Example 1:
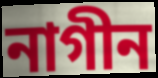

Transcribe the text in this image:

নাগীন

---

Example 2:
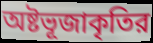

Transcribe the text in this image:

অষ্টভূজাকৃতির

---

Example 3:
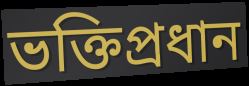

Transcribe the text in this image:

ভক্তিপ্রধান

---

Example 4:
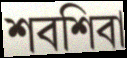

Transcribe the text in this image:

শবশিবা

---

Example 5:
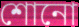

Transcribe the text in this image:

শোনো